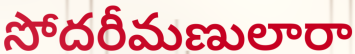
సోదరీమణులారా